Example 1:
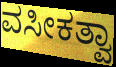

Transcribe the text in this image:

ವಸೀಕತ್ವಾ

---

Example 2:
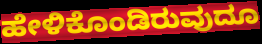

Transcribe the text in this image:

ಹೇಳಿಕೊಂಡಿರುವುದೂ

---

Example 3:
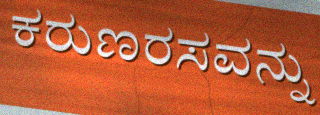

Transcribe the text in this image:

ಕರುಣರಸವನ್ನು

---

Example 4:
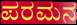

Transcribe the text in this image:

ಪರಮನ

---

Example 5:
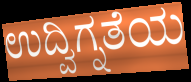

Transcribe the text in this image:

ಉದ್ವಿಗ್ನತೆಯ